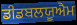
ਡੀਡਬਲਯੂਐਮ